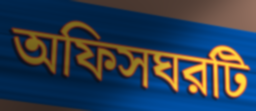
অফিসঘরটি